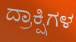
ದ್ರಾಕ್ಷಿಗಳ